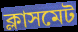
ক্লাসমেট